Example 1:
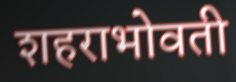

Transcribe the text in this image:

शहराभोवती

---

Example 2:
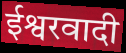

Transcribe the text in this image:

ईश्वरवादी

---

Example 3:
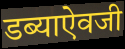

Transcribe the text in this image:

डब्याऐवजी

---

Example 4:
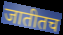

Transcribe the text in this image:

जातीतच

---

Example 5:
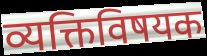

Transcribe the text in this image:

व्यक्तिविषयक